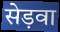
सेड़वा